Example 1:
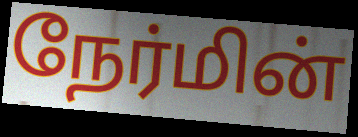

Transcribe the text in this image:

நேர்மின்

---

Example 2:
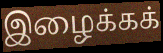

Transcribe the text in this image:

இழைக்கக்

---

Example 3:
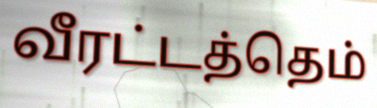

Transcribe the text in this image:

வீரட்டத்தெம்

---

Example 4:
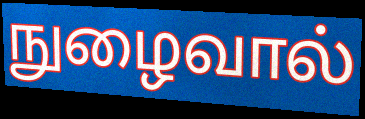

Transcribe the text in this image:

நுழைவால்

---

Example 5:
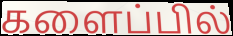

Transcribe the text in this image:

களைப்பில்